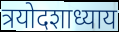
त्रयोदशाध्याय